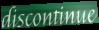
discontinue